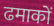
ढमाकों